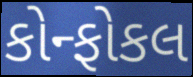
કોન્ફોકલ